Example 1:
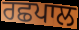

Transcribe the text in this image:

ਰਛਪਾਲ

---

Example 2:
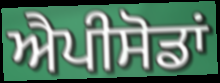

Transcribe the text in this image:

ਐਪੀਸੋਡਾਂ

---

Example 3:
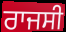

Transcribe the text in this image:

ਰਾਜਸੀ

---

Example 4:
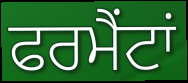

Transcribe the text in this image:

ਫਰਮੈਂਟਾਂ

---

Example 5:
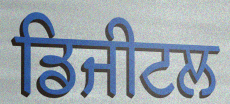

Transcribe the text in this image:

ਡਿਜੀਟਲ